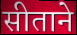
सीताने